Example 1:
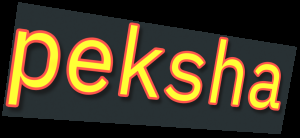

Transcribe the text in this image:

peksha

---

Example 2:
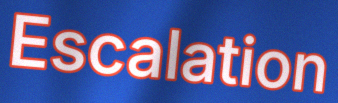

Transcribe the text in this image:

Escalation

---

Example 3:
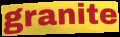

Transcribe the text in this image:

granite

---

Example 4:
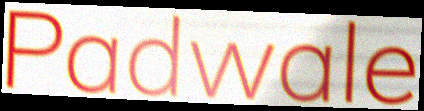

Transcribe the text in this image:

Padwale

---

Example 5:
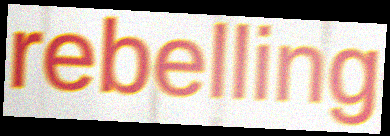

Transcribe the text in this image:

rebelling